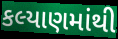
કલ્યાણમાંથી